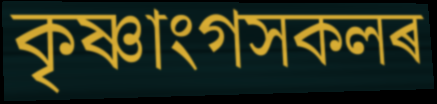
কৃষ্ণাংগসকলৰ